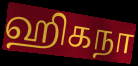
ஹிகநா